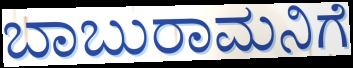
ಬಾಬುರಾಮನಿಗೆ